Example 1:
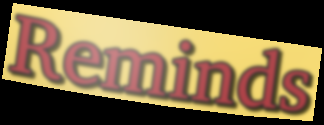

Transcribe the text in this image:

Reminds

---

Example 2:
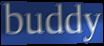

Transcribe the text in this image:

buddy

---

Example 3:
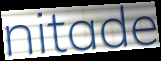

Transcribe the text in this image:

nitade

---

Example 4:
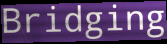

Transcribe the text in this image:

Bridging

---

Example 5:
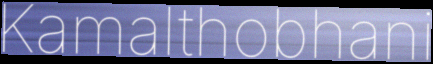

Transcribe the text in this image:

Kamalthobhani